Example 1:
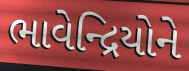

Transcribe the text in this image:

ભાવેન્દ્રિયોને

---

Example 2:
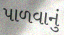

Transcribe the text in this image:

પાળવાનું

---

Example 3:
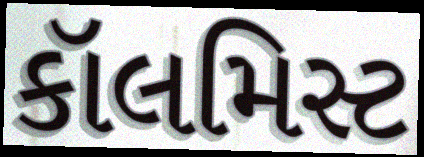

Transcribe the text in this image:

કૉલમિસ્ટ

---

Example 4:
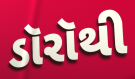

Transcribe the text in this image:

ડૉરૉથી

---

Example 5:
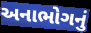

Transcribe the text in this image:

અનાભોગનું